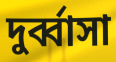
দুর্ব্বাসা